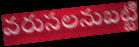
వరుసలనుబట్టి